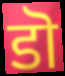
डॊ